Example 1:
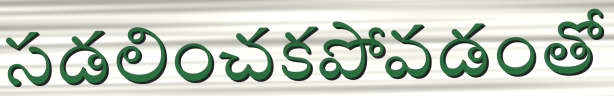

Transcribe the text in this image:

సడలించకపోవడంతో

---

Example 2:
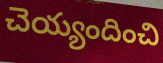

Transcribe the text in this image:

చెయ్యందించి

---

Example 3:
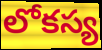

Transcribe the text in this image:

లోకస్య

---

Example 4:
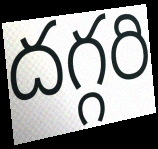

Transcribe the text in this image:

దగ్గరి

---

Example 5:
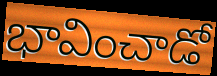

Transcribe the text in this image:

భావించాడో